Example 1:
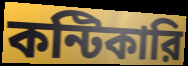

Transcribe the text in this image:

কন্টিকারি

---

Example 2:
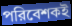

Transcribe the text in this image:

পরিবেশকই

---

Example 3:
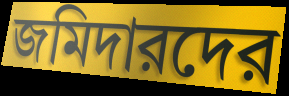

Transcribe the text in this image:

জমিদারদের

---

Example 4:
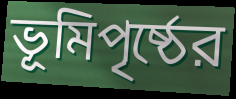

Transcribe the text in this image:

ভূমিপৃষ্ঠের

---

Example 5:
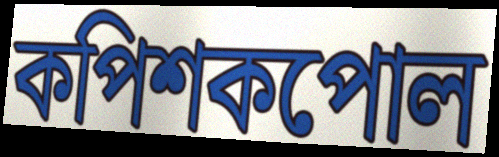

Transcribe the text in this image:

কপিশকপোল